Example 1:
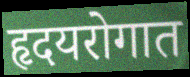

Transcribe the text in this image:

हृदयरोगात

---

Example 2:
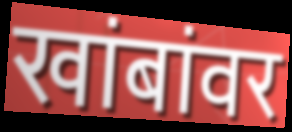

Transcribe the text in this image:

खांबांवर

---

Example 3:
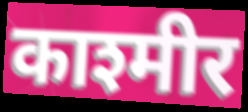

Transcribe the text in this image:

काश्मीर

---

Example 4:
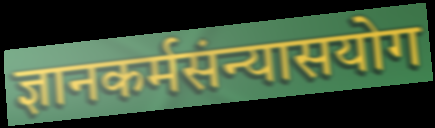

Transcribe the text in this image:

ज्ञानकर्मसंन्यासयोग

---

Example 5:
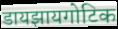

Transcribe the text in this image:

डायझायगोटिक